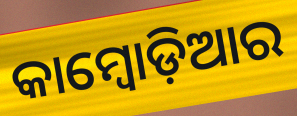
କାମ୍ବୋଡ଼ିଆର